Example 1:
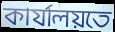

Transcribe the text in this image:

কাৰ্যালয়তে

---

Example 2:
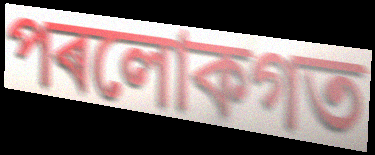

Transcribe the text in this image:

পৰলোকগত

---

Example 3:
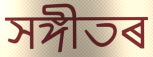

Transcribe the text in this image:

সঙ্গীতৰ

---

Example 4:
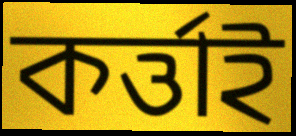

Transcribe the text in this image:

কৰ্ত্তাই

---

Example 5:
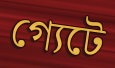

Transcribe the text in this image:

গ্যেটে